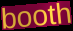
booth